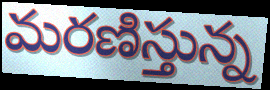
మరణిస్తున్న